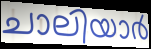
ചാലിയാർ